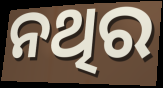
ନଥିର